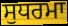
ਸੁਧਰਮਾ